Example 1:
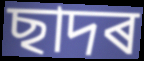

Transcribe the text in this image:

ছাদৰ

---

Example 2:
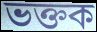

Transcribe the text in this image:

ভক্তক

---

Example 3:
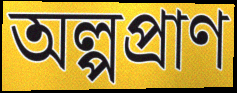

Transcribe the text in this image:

অল্পপ্ৰাণ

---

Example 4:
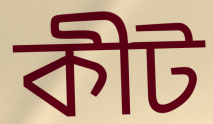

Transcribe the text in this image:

কীট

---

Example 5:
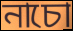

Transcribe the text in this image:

নাচো